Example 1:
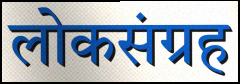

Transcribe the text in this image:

लोकसंग्रह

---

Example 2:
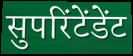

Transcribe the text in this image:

सुपरिंटेंडेंट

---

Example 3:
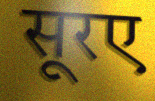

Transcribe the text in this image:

सूरए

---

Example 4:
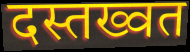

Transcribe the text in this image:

दस्तख्वत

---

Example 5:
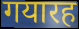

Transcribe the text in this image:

गयारह